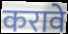
करावे